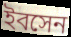
ইবসেন